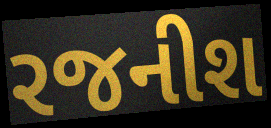
રજનીશ